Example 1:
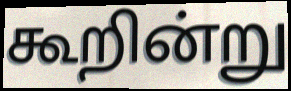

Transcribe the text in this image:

கூறின்று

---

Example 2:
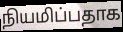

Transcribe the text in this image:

நியமிப்பதாக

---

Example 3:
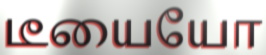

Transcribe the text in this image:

டீயையோ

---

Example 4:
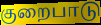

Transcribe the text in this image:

குறைபாடு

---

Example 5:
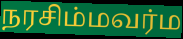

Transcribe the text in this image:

நரசிம்மவர்ம